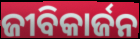
ଜୀବିକାର୍ଜନ